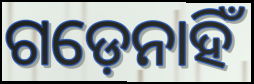
ଗଡ଼େନାହିଁ